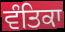
ਵੰਤਿਕਾ